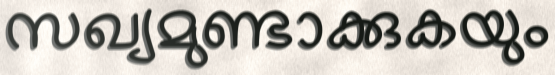
സഖ്യമുണ്ടാക്കുകയും